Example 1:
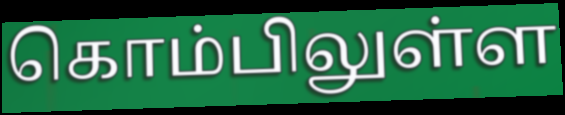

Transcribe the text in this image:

கொம்பிலுள்ள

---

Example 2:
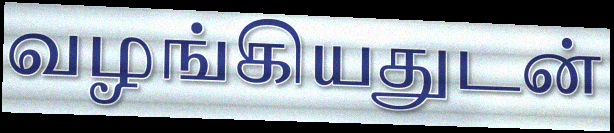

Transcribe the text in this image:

வழங்கியதுடன்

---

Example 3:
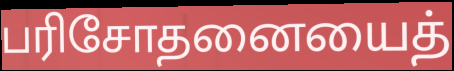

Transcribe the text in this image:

பரிசோதனையைத்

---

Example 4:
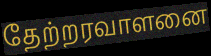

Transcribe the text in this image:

தேற்றரவாளனை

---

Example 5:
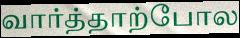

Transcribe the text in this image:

வார்த்தாற்போல